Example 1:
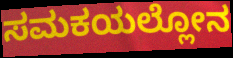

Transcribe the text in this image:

ಸಮಕಯಲ್ಲೋನ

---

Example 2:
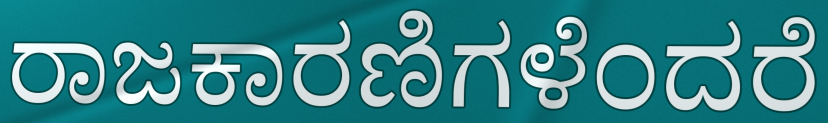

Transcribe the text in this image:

ರಾಜಕಾರಣಿಗಳೆಂದರೆ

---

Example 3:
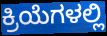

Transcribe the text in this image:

ಕ್ರಿಯೆಗಳಲ್ಲಿ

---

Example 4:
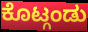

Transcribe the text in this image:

ಕೊಟ್ಗಂಡು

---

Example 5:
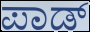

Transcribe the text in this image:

ಪಾಡ್